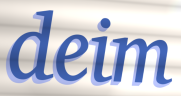
deim